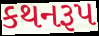
કથનરૂપ